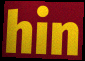
hin